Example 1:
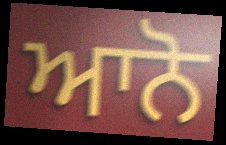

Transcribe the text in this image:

ਆਨੋ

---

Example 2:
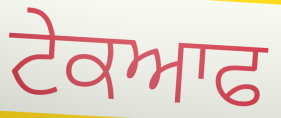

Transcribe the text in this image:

ਟੇਕਆਫ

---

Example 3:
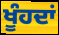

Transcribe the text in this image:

ਖੂੰਹਦਾਂ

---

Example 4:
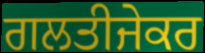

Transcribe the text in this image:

ਗਲਤੀਜੇਕਰ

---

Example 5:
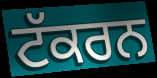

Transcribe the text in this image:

ਟੱਕਰਨ